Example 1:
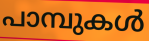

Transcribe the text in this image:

പാമ്പുകൾ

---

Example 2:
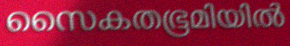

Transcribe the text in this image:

സൈകതഭൂമിയിൽ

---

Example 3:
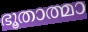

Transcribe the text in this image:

ഭൂതാത്മാ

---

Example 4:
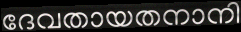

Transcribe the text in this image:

ദേവതായതനാനി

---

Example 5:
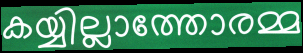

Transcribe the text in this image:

കയ്യില്ലാത്തോരമ്മ